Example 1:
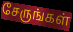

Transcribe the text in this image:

சேருங்கள்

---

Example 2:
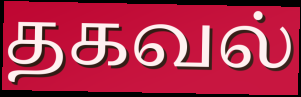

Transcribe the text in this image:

தகவல்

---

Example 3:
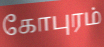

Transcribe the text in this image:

கோபுரம்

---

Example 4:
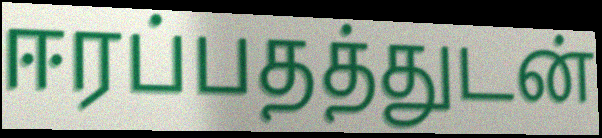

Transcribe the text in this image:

ஈரப்பதத்துடன்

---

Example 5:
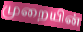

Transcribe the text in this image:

முறையின்